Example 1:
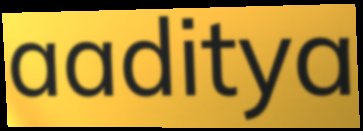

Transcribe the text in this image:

aaditya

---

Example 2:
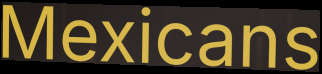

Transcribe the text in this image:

Mexicans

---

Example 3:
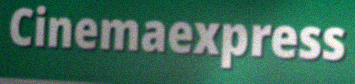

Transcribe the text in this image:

Cinemaexpress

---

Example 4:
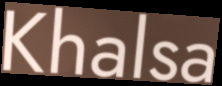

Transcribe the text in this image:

Khalsa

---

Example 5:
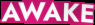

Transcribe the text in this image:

AWAKE